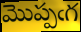
మొప్పఁగ